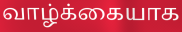
வாழ்க்கையாக